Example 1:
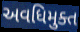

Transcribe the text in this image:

અવધિમુક્ત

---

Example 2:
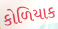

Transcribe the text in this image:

કોળિયાક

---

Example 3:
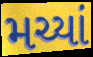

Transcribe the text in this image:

મચ્યાં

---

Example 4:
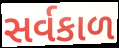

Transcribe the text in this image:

સર્વકાળ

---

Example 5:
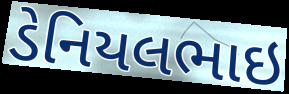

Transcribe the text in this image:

ડેનિયલભાઇ